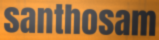
santhosam